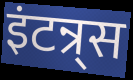
इंटन्र्स